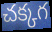
చక్కగ